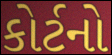
કોર્ટનો